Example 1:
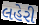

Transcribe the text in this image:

લહેરી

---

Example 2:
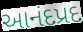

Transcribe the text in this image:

આનંદપ્રદ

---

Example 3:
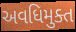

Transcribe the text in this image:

અવધિમુક્ત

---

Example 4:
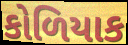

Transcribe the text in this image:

કોળિયાક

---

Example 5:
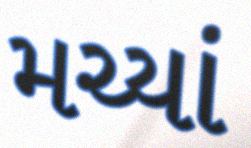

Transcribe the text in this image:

મચ્યાં